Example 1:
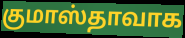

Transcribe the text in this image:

குமாஸ்தாவாக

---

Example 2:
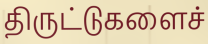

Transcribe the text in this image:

திருட்டுகளைச்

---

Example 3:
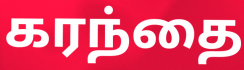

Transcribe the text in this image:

கரந்தை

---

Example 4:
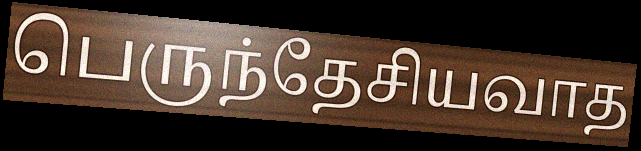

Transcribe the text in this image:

பெருந்தேசியவாத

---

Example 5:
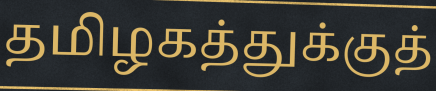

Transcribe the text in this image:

தமிழகத்துக்குத்